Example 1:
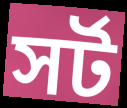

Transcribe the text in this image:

সর্ট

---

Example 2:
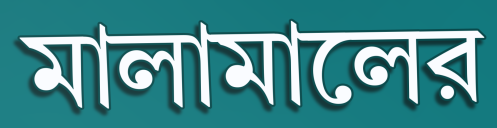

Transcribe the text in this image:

মালামালের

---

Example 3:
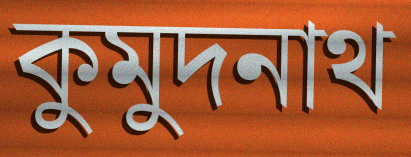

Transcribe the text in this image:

কুমুদনাথ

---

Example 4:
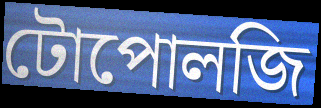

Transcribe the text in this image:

টোপোলজি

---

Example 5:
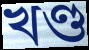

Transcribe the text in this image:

খণ্ড